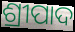
ଶ୍ରୀପାଦ